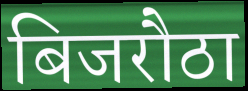
बिजरौठा